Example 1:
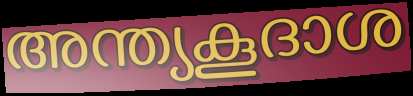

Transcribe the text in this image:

അന്ത്യകൂദാശ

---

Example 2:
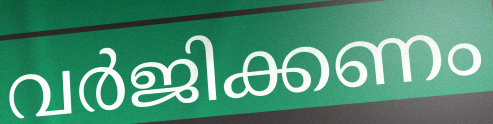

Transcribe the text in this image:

വർജിക്കണം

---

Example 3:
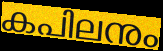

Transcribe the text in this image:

കപിലനും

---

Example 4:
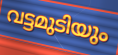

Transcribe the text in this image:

വട്ടമുടിയും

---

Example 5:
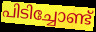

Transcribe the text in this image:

പിടിച്ചോണ്ട്